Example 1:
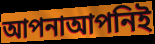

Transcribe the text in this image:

আপনাআপনিই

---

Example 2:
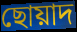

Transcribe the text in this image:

ছোয়াদ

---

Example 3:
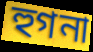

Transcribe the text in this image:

হুগনা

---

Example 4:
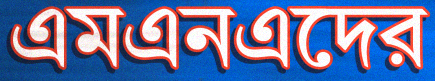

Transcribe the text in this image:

এমএনএদের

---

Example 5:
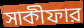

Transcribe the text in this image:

সাকীফার